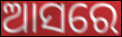
ଆସରେ